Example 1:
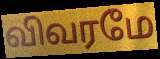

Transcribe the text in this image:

விவரமே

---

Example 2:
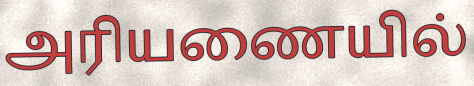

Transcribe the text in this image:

அரியணையில்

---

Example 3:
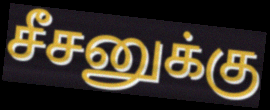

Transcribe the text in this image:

சீசனுக்கு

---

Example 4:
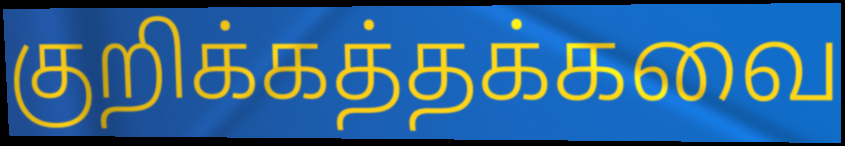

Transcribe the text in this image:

குறிக்கத்தக்கவை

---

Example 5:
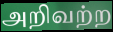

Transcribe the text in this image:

அறிவற்ற